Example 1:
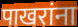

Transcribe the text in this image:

पाखरांना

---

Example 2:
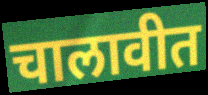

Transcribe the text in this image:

चालावीत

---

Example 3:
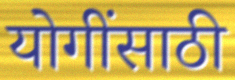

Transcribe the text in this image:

योगींसाठी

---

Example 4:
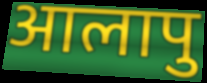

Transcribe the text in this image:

आलापु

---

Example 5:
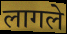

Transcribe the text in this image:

लागले